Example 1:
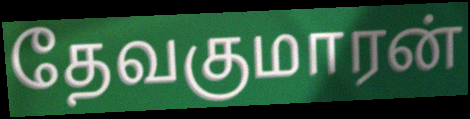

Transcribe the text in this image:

தேவகுமாரன்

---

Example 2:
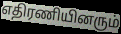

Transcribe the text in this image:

எதிரணியினரும்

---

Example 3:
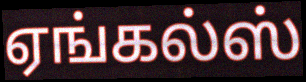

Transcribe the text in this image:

ஏங்கல்ஸ்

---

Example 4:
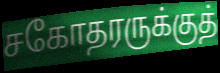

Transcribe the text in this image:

சகோதரருக்குத்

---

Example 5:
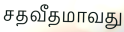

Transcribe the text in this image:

சதவீதமாவது